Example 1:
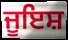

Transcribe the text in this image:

ਜੂਇਸ਼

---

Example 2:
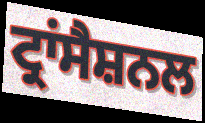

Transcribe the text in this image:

ਟ੍ਰਾਂਸੈਸ਼ਨਲ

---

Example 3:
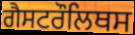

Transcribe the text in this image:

ਗੈਸਟਰੌਲਿਥਸ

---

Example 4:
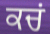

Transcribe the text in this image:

ਕਚਂ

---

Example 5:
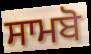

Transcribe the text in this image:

ਸਾਮਬੋ